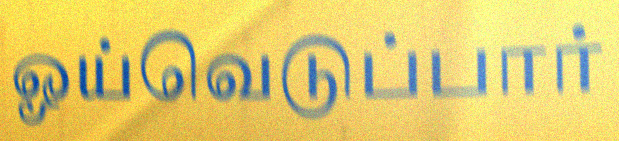
ஓய்வெடுப்பார்